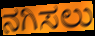
ನಗಿಸಲು